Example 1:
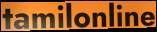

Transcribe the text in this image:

tamilonline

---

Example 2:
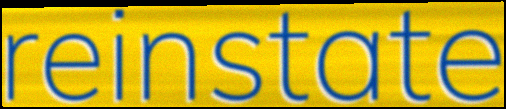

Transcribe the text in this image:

reinstate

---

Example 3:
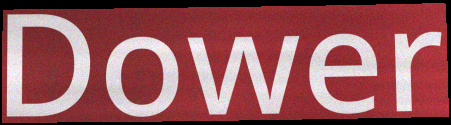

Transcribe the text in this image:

Dower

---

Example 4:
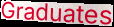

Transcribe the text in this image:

Graduates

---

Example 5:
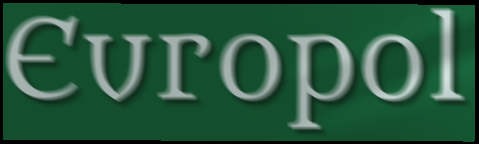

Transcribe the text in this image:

Europol